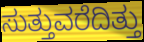
ಸುತ್ತುವರೆದಿತ್ತು